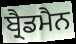
ਬ੍ਰੈਡਮੈਨ